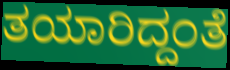
ತಯಾರಿದ್ದಂತೆ